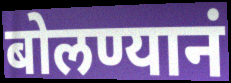
बोलण्यानं